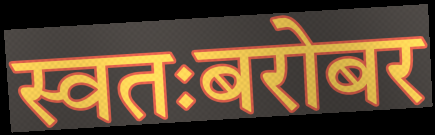
स्वतःबरोबर